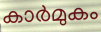
കാർമുകം